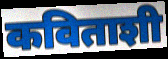
कविताशी